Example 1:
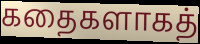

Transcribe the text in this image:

கதைகளாகத்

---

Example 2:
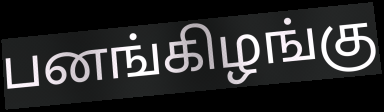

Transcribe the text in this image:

பனங்கிழங்கு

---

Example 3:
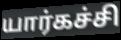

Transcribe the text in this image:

யார்கச்சி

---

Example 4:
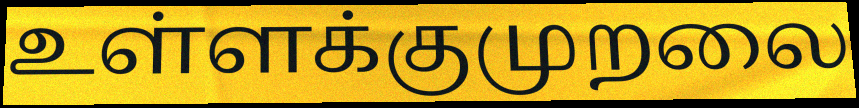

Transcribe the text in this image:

உள்ளக்குமுறலை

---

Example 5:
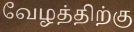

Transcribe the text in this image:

வேழத்திற்கு